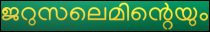
ജറുസലെമിന്റെയും